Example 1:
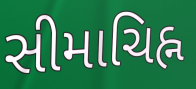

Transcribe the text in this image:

સીમાચિહ્ન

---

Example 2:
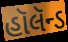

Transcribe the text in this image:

હૉલૅન્ડ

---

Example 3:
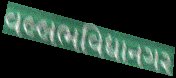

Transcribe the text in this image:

વલ્લભવિદ્યાનગર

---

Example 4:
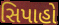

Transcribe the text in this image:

સિપાહો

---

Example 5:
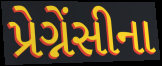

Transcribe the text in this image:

પ્રેગ્નેંસીના